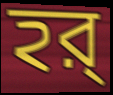
হর্